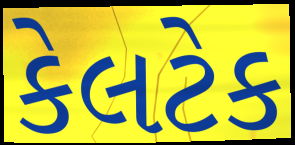
કેલટેક